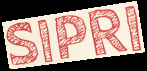
SIPRI